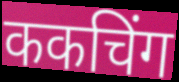
ककचिंग